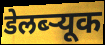
डेलब्ऱ्यूक